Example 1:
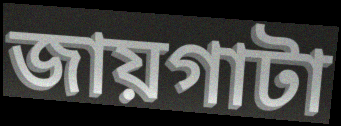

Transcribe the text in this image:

জায়গাটা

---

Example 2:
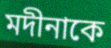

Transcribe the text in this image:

মদীনাকে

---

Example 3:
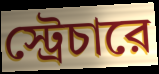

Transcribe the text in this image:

স্ট্রেচারে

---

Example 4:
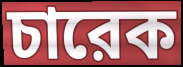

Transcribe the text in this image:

চারেক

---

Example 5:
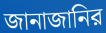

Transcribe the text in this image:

জানাজানির